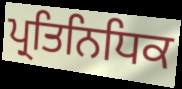
ਪ੍ਰਤਿਨਿਧਿਕ